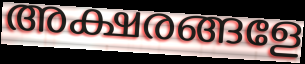
അക്ഷരങ്ങളേ